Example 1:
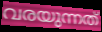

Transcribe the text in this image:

വരയുന്നത്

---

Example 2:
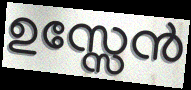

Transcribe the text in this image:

ഉസ്സേൻ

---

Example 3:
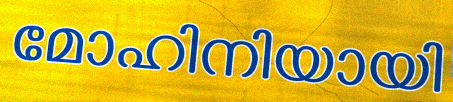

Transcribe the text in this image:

മോഹിനിയായി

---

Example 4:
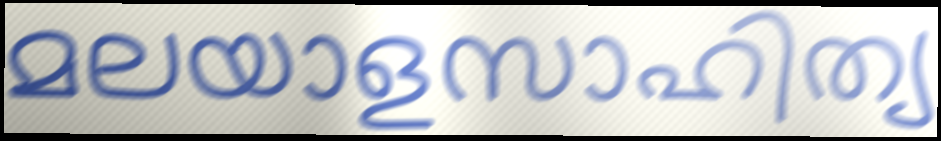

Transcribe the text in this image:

മലയാളസാഹിത്യ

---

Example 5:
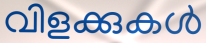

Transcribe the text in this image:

വിളക്കുകൾ